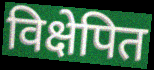
विक्षेपित